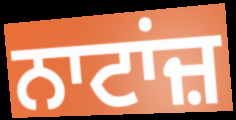
ਨਾਟਾਂਜ਼